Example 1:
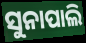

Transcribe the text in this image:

ସୁନାପାଲି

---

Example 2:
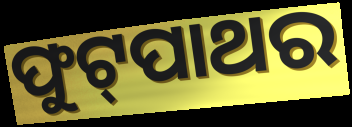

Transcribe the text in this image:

ଫୁଟ୍‌ପାଥର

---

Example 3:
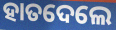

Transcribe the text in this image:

ହାତଦେଲେ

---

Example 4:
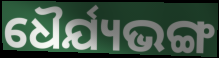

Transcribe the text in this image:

ଧୈର୍ଯ୍ୟଭଙ୍ଗ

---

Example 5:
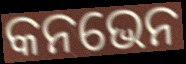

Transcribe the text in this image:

କନଭେନ